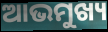
ଆଭମୁଖ୍ୟ